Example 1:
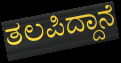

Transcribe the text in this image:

ತಲಪಿದ್ದಾನೆ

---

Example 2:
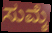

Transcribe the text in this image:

ಸುಮ್ಕೆ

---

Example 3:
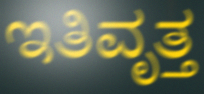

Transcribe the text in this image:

ಇತಿವೃತ್ತ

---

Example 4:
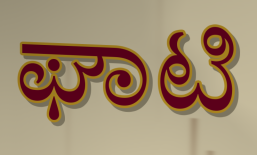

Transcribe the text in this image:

ಘಾಟಿ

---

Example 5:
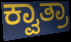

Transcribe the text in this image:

ಕ್ವಾತ್ರಾ